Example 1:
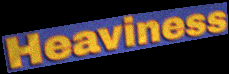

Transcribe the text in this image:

Heaviness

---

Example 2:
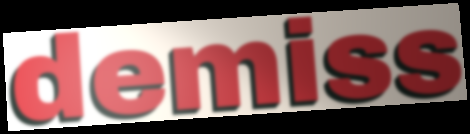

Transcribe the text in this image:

demiss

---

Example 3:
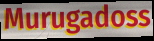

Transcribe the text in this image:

Murugadoss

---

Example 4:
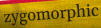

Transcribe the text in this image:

zygomorphic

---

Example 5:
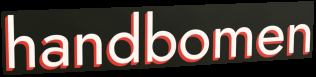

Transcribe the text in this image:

handbomen